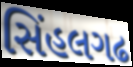
સિંહલગઢ